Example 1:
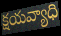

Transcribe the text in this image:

క్షయవ్యాధి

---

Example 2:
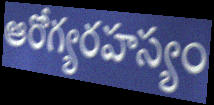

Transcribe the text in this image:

ఆరోగ్యరహస్యం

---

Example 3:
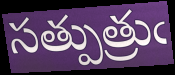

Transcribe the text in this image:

సత్పుత్రుఁ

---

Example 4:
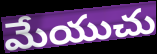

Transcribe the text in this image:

మేయుచు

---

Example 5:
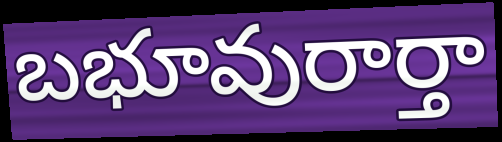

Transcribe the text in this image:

బభూవురార్తా